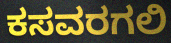
ಕಸವರಗಲಿ